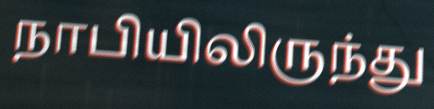
நாபியிலிருந்து